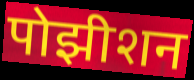
पोझीशन